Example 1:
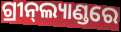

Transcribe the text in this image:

ଗ୍ରୀନ୍‍ଲ୍ୟାଣ୍ଡରେ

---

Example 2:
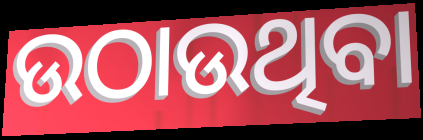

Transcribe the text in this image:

ଉଠାଉଥିବା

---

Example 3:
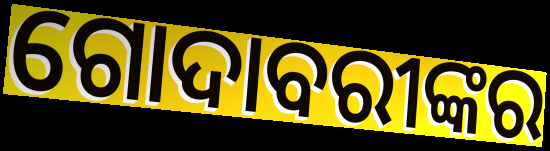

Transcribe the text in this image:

ଗୋଦାବରୀଙ୍କର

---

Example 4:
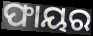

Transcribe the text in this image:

ଫାୟର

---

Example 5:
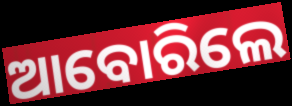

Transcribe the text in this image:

ଆବୋରିଲେ